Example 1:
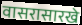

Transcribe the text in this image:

वासरासारखे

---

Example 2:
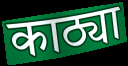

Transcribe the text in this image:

काठ्या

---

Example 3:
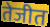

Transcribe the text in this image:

तेजीत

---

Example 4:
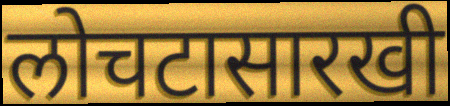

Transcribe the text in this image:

लोचटासारखी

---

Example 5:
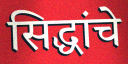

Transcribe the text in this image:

सिद्धांचे